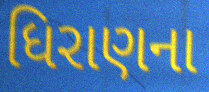
ધિરાણના